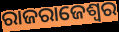
ରାଜରାଜେଶ୍ଵର